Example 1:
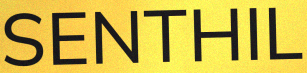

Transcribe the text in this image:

SENTHIL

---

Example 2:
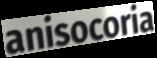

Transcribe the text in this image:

anisocoria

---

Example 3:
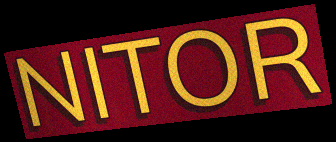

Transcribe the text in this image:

NITOR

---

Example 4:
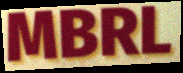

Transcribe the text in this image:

MBRL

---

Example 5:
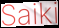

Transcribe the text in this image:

Saiki